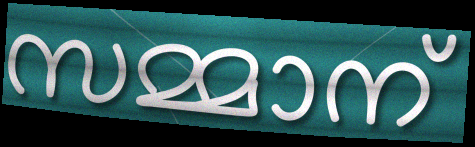
സമ്മാന്